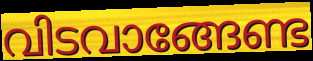
വിടവാങ്ങേണ്ട